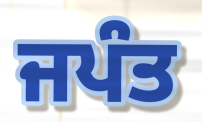
ਜਪੰਤ